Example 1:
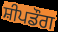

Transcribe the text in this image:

ਸ਼ੀਪਡੌਗ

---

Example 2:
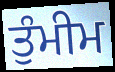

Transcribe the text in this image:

ਤੁੰਮੀਮ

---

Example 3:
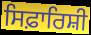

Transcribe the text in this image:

ਸਿਫ਼ਾਰਿਸ਼ੀ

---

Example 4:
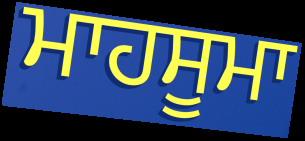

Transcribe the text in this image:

ਮਾਹਸੂਮਾ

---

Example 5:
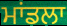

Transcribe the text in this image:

ਮਾਂਡਲਾ